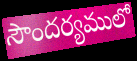
సౌందర్యములో